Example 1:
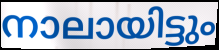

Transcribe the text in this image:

നാലായിട്ടും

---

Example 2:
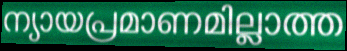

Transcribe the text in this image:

ന്യായപ്രമാണമില്ലാത്ത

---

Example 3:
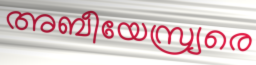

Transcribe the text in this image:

അബീയേസ്ര്യരെ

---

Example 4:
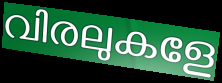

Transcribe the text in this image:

വിരലുകളേ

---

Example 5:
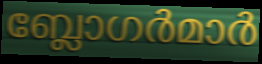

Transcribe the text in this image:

ബ്ലോഗർമാർ